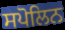
ਸਪੋਲਿਨ